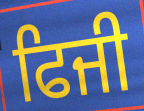
ਫਿਜੀ